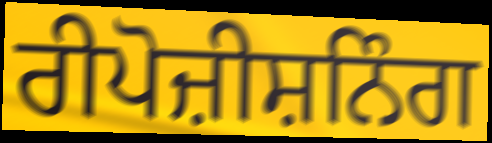
ਰੀਪੋਜ਼ੀਸ਼ਨਿੰਗ